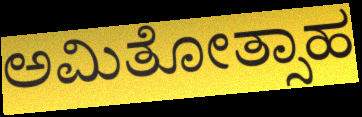
ಅಮಿತೋತ್ಸಾಹ